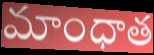
మాంధాత